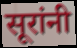
सूरांनी